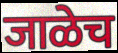
जाळेच